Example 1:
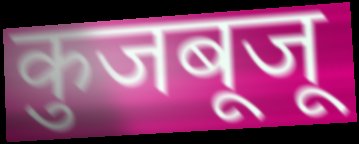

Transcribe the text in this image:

कुजबूजू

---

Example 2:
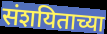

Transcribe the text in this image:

संशयिताच्या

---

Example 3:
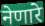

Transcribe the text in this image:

नेणारे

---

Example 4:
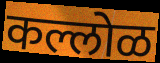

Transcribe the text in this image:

कल्लोळ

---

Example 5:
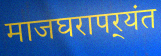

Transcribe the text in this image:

माजघरापर्यंत